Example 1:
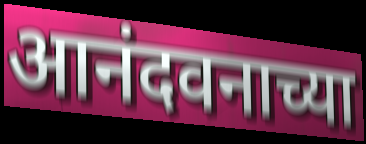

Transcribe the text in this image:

आनंदवनाच्या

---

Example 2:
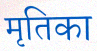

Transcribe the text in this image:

मृतिका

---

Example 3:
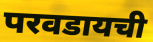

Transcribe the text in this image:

परवडायची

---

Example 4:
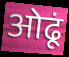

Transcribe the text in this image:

ओढूं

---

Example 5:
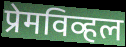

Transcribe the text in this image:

प्रेमविव्हल